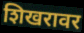
शिखरावर